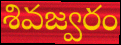
శివజ్వరం